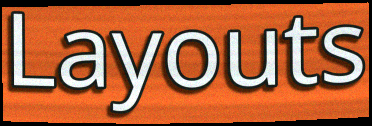
Layouts